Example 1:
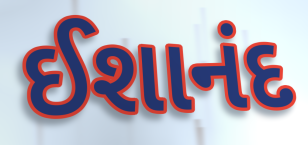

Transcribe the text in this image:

ઈશાનંદ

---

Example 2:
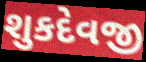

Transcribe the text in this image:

શુકદેવજી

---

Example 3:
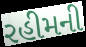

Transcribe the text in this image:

રહીમની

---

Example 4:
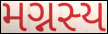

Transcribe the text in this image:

મગ્નસ્ય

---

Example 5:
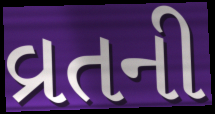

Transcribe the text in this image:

વ્રતની